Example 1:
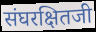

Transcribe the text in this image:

संघरक्षितजी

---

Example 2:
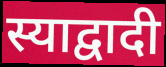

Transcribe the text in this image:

स्याद्वादी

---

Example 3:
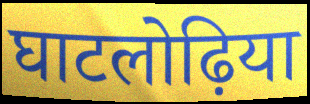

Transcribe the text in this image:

घाटलोढ़िया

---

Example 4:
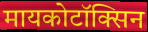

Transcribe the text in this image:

मायकोटॉक्सिन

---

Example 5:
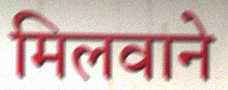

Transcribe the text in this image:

मिलवाने